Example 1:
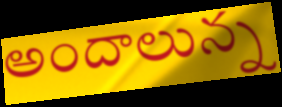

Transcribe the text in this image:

అందాలున్న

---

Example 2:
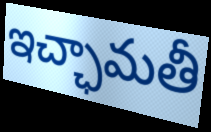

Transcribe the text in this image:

ఇచ్ఛామతీ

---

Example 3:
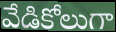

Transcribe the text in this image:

వేడికోలుగా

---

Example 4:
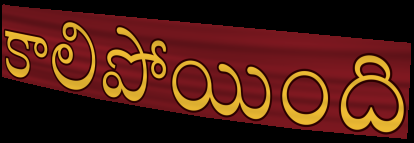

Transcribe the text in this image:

కాలిపోయింది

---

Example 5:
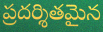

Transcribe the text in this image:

ప్రదర్శితమైన